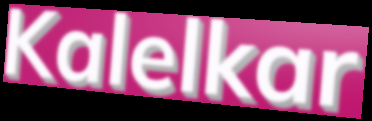
Kalelkar